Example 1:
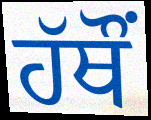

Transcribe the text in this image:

ਹੱਥੌਂ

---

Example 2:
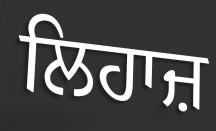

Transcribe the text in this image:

ਲਿਹਾਜ਼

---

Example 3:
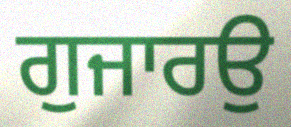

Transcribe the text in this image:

ਗੁਜਾਰਉ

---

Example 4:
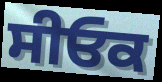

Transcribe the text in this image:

ਸੀਓਕ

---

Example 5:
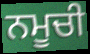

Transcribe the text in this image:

ਨਮੂਚੀ